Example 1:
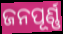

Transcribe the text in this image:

ଜନପୂର୍ଣ୍ଣ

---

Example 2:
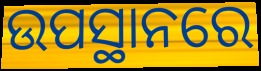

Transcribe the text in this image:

ଉପସ୍ଥାନରେ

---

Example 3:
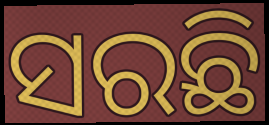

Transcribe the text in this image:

ସରଛି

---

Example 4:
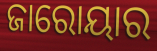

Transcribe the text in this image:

ଜାରୋୟାର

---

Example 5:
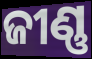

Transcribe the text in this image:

ଜୀଣ୍ଣ